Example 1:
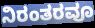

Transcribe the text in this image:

ನಿರಂತರವೂ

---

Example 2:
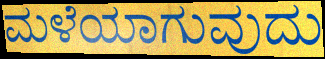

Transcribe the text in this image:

ಮಳೆಯಾಗುವುದು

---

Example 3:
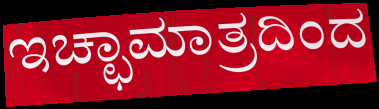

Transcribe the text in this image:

ಇಚ್ಛಾಮಾತ್ರದಿಂದ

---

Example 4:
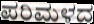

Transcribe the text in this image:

ಪರಿಮಳದ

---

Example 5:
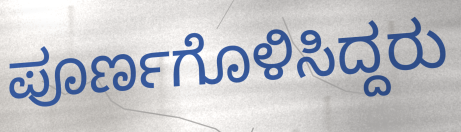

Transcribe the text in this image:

ಪೂರ್ಣಗೊಳಿಸಿದ್ದರು